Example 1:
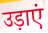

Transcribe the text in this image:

उड़ाएं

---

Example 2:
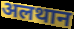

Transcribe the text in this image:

अलथान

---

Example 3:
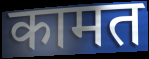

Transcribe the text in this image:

कामत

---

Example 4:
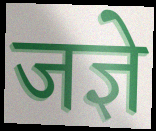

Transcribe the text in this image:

जज्ञे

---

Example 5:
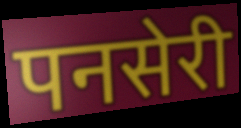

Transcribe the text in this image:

पनसेरी